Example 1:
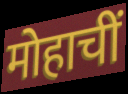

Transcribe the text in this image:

मोहाचीं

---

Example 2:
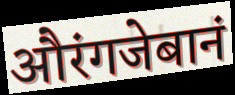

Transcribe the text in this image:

औरंगजेबानं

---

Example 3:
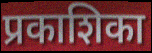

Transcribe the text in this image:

प्रकाशिका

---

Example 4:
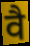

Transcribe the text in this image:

वै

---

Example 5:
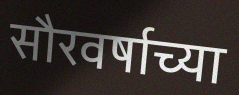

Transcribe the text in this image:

सौरवर्षाच्या